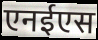
एनईएस